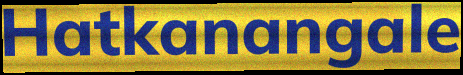
Hatkanangale